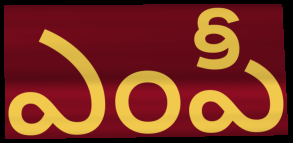
ఎంపీ